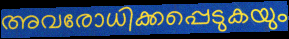
അവരോധിക്കപ്പെടുകയും